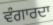
ਵੰਗਾਰਦਾ